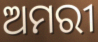
ଅମରୀ